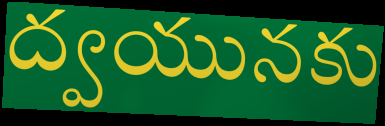
ద్వయునకు